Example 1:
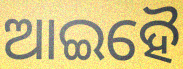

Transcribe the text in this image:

ଆଇହୈ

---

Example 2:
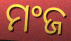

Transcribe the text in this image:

ମଂଜ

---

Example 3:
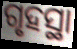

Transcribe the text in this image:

ଗୃହସ୍ଥା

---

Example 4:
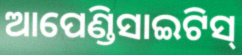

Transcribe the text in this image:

ଆପେଣ୍ଡିସାଇଟିସ୍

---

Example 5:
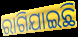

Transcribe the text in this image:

ରାଗିଯାଇଛି